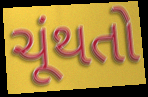
ચૂંથતો